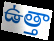
ఉత్తా